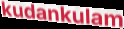
kudankulam